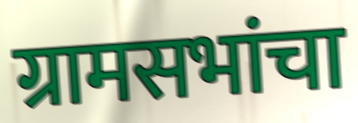
ग्रामसभांचा